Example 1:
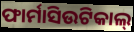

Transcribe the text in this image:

ଫାର୍ମାସିଉଟିକାଲ୍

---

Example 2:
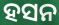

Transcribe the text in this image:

ହସନ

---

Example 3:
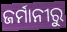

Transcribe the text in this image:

ଜର୍ମାନୀରୁ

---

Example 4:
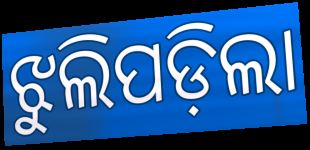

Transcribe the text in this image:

ଝୁଲିପଡ଼ିଲା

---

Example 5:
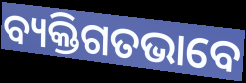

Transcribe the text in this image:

ବ୍ୟକ୍ତିଗତଭାବେ